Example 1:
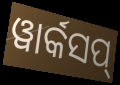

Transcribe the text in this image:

ୱାର୍କସପ୍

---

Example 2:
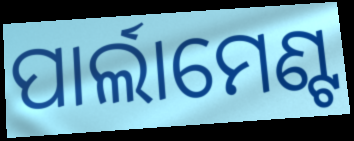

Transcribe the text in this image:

ପାର୍ଲାମେଣ୍ଟ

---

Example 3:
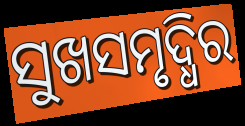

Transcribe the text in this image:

ସୁଖସମୃଦ୍ଧିର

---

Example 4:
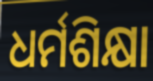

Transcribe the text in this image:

ଧର୍ମଶିକ୍ଷା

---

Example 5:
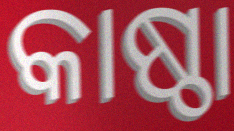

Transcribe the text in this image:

କାଷ୍ଠା